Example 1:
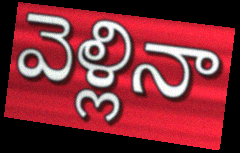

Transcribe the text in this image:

వెళ్లినా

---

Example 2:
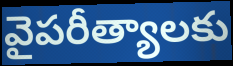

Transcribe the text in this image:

వైపరీత్యాలకు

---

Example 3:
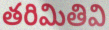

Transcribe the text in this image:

తరిమితివి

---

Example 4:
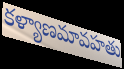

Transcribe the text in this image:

కళ్యాణమావహతు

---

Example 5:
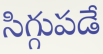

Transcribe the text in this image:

సిగ్గుపడే